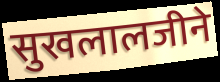
सुखलालजीने